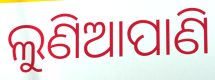
ଲୁଣିଆପାଣି